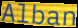
Alban